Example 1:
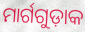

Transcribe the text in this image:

ମାର୍ଗଗୁଡ଼ାକ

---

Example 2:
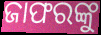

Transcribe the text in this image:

ଜାଫରଙ୍କୁ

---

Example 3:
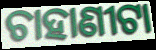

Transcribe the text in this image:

ଚାହାଣୀଟା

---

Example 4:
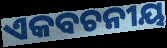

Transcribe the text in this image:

ଏକବଚନୀୟ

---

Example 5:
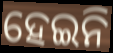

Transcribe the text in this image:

ହେଇନି